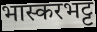
भास्करभट्ट